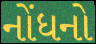
નોંધનો